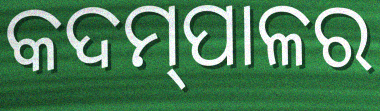
କଦମ୍‍ପାଳର